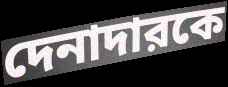
দেনাদারকে